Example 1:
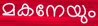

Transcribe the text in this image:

മകനേയും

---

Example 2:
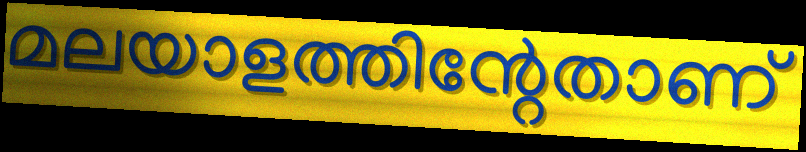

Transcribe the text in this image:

മലയാളത്തിന്റേതാണ്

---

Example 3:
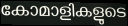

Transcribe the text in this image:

കോമാളികളുടെ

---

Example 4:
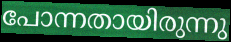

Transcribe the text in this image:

പോന്നതായിരുന്നു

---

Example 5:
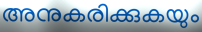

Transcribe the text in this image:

അനുകരിക്കുകയും